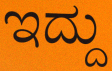
ಇದ್ದು